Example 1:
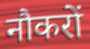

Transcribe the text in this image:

नौकरों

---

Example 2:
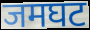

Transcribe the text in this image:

जमघट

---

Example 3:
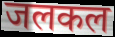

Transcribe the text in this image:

जलकल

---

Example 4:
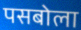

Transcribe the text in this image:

पसबोला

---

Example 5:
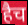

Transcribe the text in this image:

हैच